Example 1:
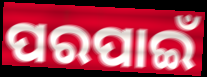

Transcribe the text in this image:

ପରପାଇଁ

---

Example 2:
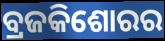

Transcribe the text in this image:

ବ୍ରଜକିଶୋରର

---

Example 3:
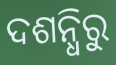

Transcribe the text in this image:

ଦଶନ୍ଧିରୁ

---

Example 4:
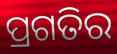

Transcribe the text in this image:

ପ୍ରଗତିର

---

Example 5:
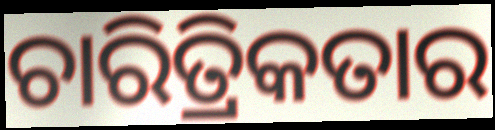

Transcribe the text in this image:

ଚାରିତ୍ରିକତାର